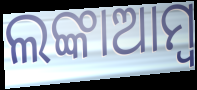
ଲଙ୍କାଆମ୍ବ